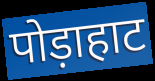
पोड़ाहाट